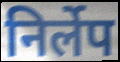
निर्लेप